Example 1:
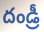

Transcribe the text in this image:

దండ్రీ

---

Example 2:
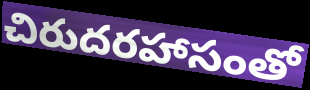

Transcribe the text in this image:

చిరుదరహాసంతో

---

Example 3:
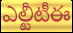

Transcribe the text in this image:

ఎల్టీటీఈ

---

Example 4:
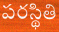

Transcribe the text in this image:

పరస్థితి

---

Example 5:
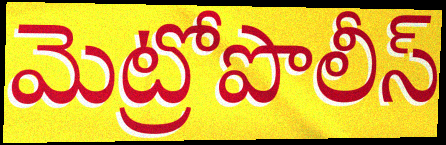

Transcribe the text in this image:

మెట్రోపొలీస్